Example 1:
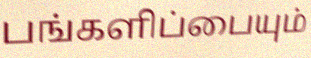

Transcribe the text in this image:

பங்களிப்பையும்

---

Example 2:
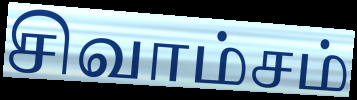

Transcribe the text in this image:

சிவாம்சம்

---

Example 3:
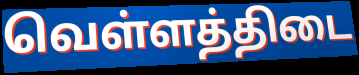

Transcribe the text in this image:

வெள்ளத்திடை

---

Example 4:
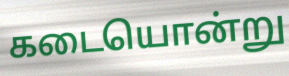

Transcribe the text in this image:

கடையொன்று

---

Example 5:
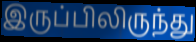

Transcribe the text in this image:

இருப்பிலிருந்து